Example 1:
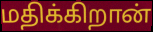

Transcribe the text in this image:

மதிக்கிறான்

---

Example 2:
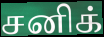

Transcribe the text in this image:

சனிக்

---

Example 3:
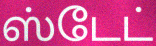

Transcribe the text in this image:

ஸ்டேட்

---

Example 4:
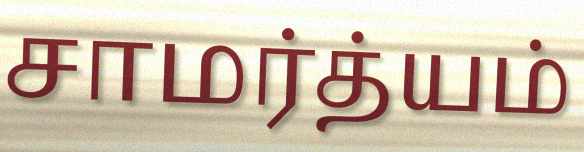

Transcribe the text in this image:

சாமர்த்யம்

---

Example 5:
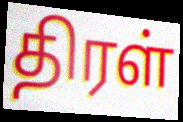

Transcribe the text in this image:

திரள்